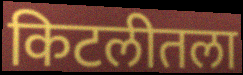
किटलीतला